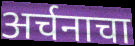
अर्चनाचा